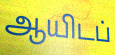
ஆயிடப்